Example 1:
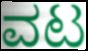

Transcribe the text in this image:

ವಟ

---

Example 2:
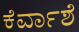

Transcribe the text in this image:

ಕೆರ್ವಾಶೆ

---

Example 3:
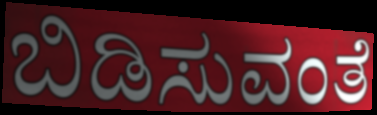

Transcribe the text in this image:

ಬಿಡಿಸುವಂತೆ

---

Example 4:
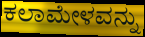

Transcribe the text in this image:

ಕಲಾಮೇಳವನ್ನು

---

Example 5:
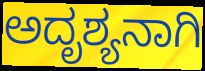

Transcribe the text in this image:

ಅದೃಶ್ಯನಾಗಿ